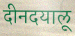
दीनदयालू